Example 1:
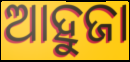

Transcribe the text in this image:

ଆହୁଜା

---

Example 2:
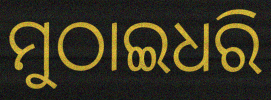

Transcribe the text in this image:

ମୁଠାଇଧରି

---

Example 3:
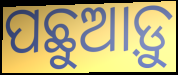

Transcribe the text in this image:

ପଛୁଆଡ଼ୁ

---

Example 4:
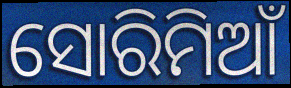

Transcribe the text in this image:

ସୋରିମିଆଁ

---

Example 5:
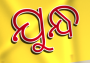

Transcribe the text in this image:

ଯୁନ୍ଧ